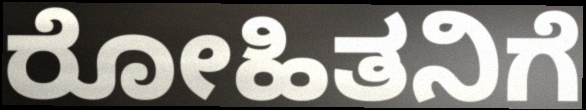
ರೋಹಿತನಿಗೆ